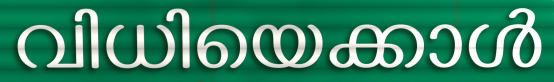
വിധിയെക്കാൾ